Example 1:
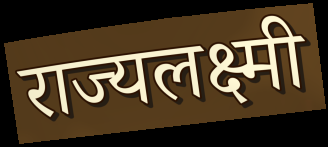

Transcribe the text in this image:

राज्यलक्ष्मी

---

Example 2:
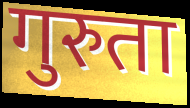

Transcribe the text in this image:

गुरुता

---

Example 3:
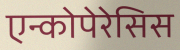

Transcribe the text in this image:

एन्कोपेरेसिस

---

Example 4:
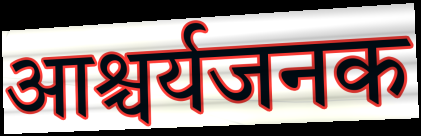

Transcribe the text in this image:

आश्चर्यजनक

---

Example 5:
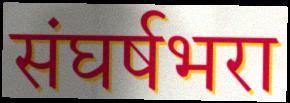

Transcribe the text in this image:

संघर्षभरा